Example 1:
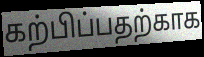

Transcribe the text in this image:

கற்பிப்பதற்காக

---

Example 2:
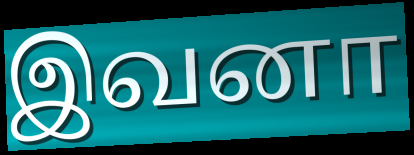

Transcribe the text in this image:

இவனா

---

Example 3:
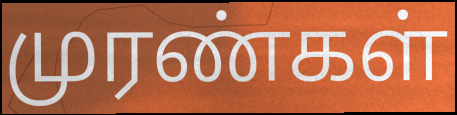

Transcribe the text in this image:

முரண்கள்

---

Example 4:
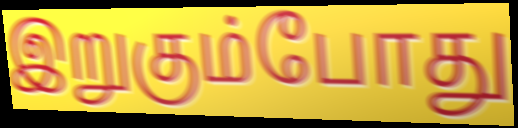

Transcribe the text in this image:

இறுகும்போது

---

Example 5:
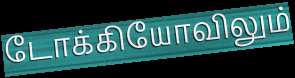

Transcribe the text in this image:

டோக்கியோவிலும்